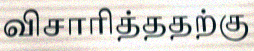
விசாரித்ததற்கு